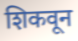
शिकवून